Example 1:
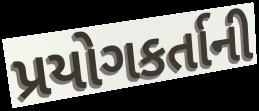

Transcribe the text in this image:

પ્રયોગકર્તાની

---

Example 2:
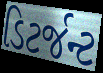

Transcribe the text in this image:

ડિટર્જન્ટ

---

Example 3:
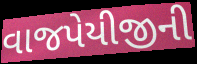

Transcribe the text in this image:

વાજપેયીજીની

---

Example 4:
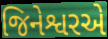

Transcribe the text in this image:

જિનેશ્વરએ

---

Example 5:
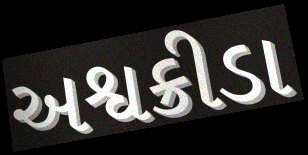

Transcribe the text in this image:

અશ્વક્રીડા